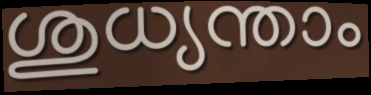
ശുധ്യന്താം